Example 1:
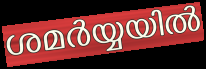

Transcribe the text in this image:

ശമർയ്യയിൽ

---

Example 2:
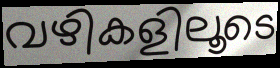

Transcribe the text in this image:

വഴികളിലൂടെ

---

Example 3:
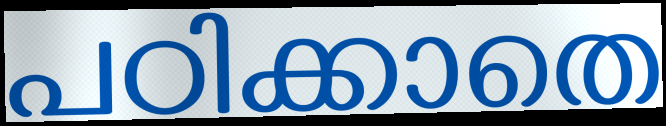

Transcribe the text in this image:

പഠിക്കാതെ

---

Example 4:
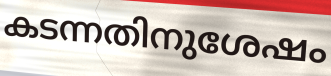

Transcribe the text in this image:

കടന്നതിനുശേഷം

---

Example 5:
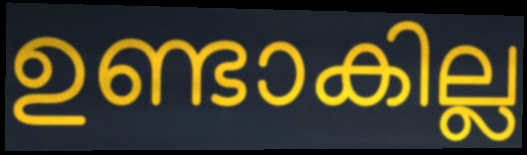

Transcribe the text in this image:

ഉണ്ടാകില്ല